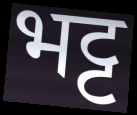
भट्ट